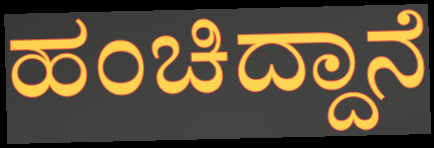
ಹಂಚಿದ್ದಾನೆ